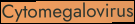
Cytomegalovirus